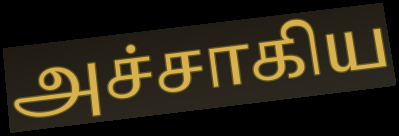
அச்சாகிய